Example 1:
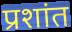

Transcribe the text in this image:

प्रशांत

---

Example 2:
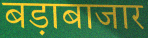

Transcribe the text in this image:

बड़ाबाजार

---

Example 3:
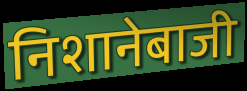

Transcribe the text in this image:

निशानेबाजी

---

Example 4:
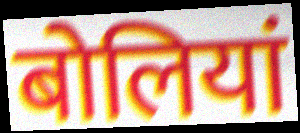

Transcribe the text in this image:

बोलियां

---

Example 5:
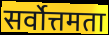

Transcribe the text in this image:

सर्वोत्तमता